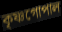
কৃষ্ণগোপাল